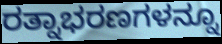
ರತ್ನಾಭರಣಗಳನ್ನೂ